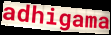
adhigama